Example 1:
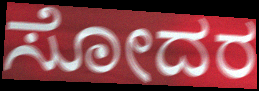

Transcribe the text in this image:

ಸೋದರ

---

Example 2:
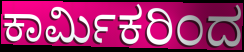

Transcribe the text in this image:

ಕಾರ್ಮಿಕರಿಂದ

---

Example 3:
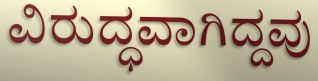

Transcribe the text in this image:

ವಿರುದ್ಧವಾಗಿದ್ದವು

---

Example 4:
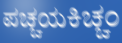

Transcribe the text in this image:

ಪಚ್ಚಯಕಿಚ್ಚಂ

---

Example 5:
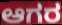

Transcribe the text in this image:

ಆಗರ